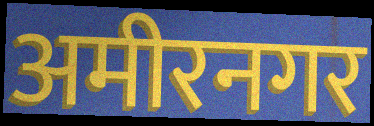
अमीरनगर